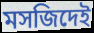
মসজিদেই